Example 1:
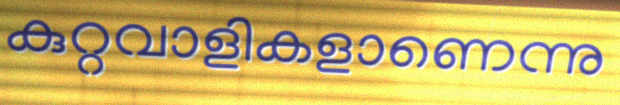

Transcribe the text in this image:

കുറ്റവാളികളാണെന്നു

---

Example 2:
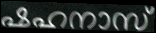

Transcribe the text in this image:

ഷഹനാസ്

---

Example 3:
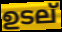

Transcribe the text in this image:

ഉടല്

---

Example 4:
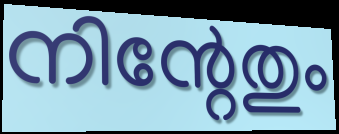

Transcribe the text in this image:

നിന്റേതും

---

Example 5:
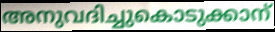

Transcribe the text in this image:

അനുവദിച്ചുകൊടുക്കാന്